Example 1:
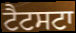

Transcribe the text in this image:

ਟੈਟਸਟਾ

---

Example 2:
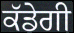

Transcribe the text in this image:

ਕੱਡੇਗੀ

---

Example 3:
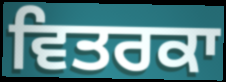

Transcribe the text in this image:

ਵਿਤਰਕਾ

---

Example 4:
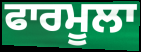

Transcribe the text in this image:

ਫਾਰਮੂਲਾ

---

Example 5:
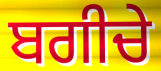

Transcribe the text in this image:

ਬਗੀਚੇ